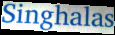
Singhalas